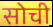
सोची